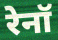
रेनॉ